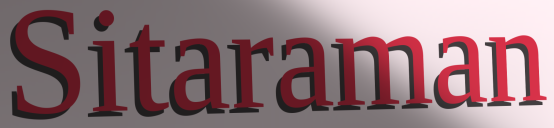
Sitaraman